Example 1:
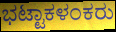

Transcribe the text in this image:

ಭಟ್ಟಾಕಳಂಕರು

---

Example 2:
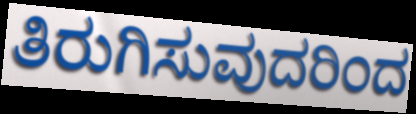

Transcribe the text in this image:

ತಿರುಗಿಸುವುದರಿಂದ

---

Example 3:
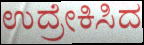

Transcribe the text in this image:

ಉದ್ರೇಕಿಸಿದ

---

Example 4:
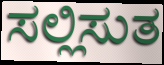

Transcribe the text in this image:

ಸಲ್ಲಿಸುತ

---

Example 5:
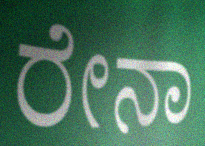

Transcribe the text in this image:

ರೇನಾ